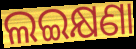
ଲଇକ୍ଷଣା